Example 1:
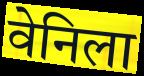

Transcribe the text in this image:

वेनिला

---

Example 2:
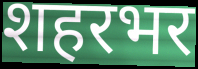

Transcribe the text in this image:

शहरभर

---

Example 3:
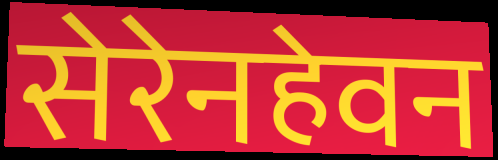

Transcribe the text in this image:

सेरेनहेवन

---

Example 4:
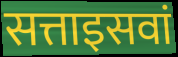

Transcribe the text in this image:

सत्ताइसवां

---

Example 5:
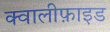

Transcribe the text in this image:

क्वालीफ़ाइड